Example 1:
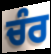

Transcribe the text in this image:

ਚੰਰ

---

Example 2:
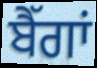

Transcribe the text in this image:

ਬੈੱਗਾਂ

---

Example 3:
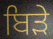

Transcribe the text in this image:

ਬਿੜੇ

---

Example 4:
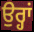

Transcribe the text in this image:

ਉਰ੍ਹਾਂ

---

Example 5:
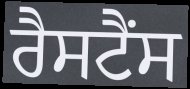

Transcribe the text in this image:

ਰੈਸਟੈਂਸ